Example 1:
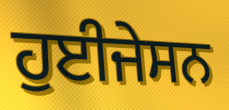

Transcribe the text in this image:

ਹੁਈਜੇਸਨ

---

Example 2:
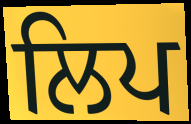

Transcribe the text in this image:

ਲਿਪ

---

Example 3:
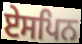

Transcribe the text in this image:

ਏਸਪਿਨ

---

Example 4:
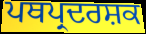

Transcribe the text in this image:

ਪਥਪ੍ਰਦਰਸ਼ਕ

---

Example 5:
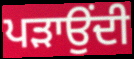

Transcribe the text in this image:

ਪੜਾਉਂਦੀ